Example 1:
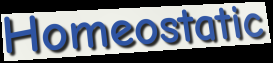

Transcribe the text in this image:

Homeostatic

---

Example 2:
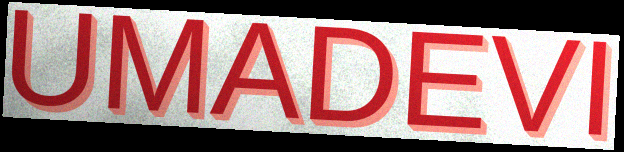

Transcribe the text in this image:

UMADEVI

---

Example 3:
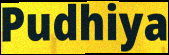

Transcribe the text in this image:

Pudhiya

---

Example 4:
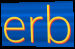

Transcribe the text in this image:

erb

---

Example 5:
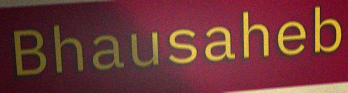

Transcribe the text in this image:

Bhausaheb